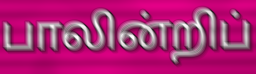
பாலின்றிப்